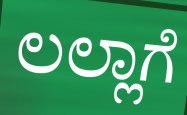
ಲಲ್ಲಾಗೆ